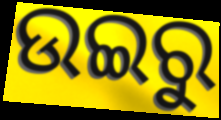
ଉଇରୁ